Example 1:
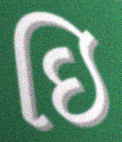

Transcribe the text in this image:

ઇિ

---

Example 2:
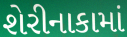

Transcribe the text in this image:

શેરીનાકામાં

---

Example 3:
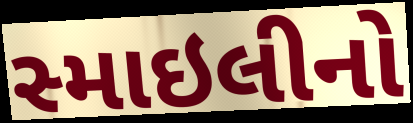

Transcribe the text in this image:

સ્માઇલીનો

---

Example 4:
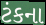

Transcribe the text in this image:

ટંકના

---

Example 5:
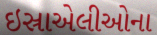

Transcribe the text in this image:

ઇસ્રાએલીઓના